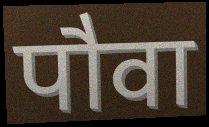
पौवा